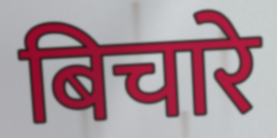
बिचारे